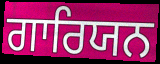
ਗਾਰਿਯਨ